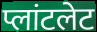
प्लांटलेट